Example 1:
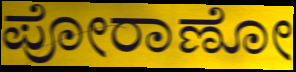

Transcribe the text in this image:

ಪೋರಾಣೋ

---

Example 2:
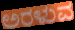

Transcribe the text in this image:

ಅರಳುವ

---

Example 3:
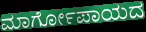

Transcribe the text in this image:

ಮಾರ್ಗೋಪಾಯದ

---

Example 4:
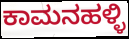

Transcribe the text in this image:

ಕಾಮನಹಳ್ಳಿ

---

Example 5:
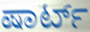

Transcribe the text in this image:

ಷಾರ್ಟ್